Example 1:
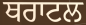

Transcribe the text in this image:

ਥਰਾਟਲ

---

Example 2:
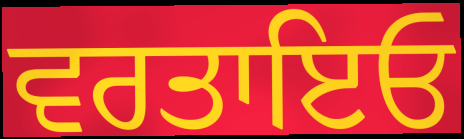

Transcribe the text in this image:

ਵਰਤਾਇਓ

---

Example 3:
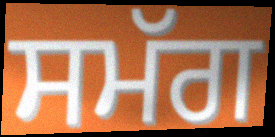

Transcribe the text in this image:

ਸਮੱਗ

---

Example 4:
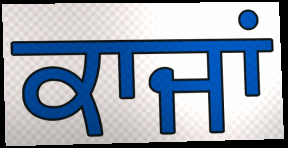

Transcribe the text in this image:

ਕਾਜਾਂ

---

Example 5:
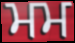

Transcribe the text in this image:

ਮਮ